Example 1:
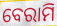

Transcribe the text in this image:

ବେରାମି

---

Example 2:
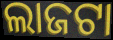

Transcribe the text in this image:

ଲାଜଟା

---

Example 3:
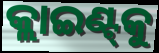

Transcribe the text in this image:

କ୍ଲାଇଣ୍ଟ୍‌କୁ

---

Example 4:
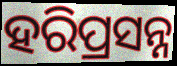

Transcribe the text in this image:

ହରିପ୍ରସନ୍ନ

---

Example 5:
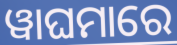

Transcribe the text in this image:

ୱାଘମାରେ